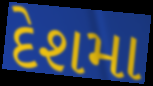
દેશમા